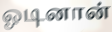
ஓடினான்